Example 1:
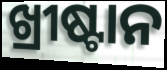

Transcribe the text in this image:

ଖ୍ରୀଷ୍ଟାନ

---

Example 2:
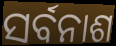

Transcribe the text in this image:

ସର୍ବନାଶ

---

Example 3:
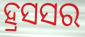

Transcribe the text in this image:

ହ୍ରସସର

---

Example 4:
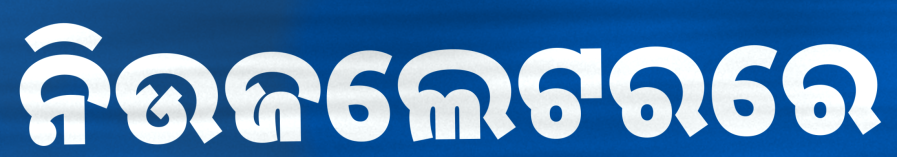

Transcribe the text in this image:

ନିଉଜଲେଟରରେ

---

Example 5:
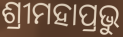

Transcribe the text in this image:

ଶ୍ରୀମହାପ୍ରଭୁ